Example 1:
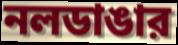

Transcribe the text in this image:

নলডাঙার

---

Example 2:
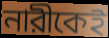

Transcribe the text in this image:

নারীকেই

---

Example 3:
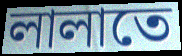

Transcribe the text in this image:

লালাতে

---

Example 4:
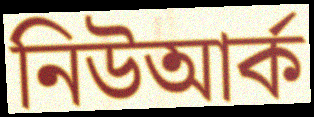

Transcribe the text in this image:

নিউআর্ক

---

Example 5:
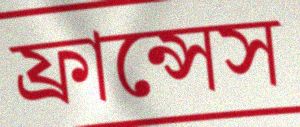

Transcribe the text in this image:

ফ্রান্সেস